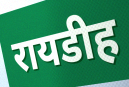
रायडीह